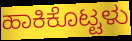
ಹಾಕಿಕೊಟ್ಟಳು